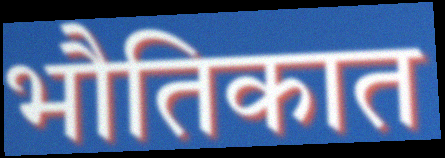
भौतिकात